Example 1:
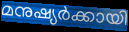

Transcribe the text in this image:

മനുഷ്യർക്കായി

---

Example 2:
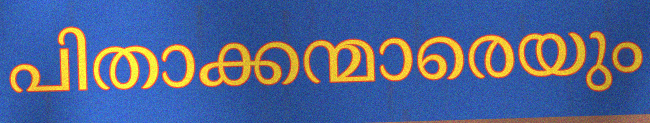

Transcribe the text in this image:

പിതാക്കന്മാരെയും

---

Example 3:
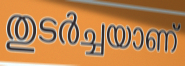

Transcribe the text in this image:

തുടർച്ചയാണ്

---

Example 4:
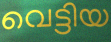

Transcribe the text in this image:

വെട്ടിയ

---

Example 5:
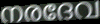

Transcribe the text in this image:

നരദേവ